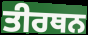
ਤੀਰਥਨ